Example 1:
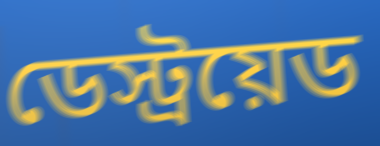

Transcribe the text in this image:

ডেস্ট্রয়েড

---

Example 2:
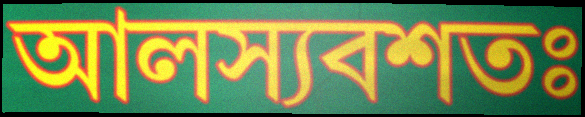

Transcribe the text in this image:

আলস্যবশতঃ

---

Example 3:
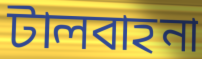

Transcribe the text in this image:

টালবাহনা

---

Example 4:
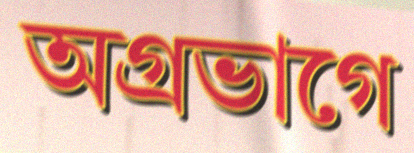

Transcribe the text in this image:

অগ্রভাগে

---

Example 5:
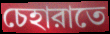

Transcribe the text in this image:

চেহারাতে